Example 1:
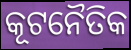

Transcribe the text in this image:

କୂଟନୈତିକ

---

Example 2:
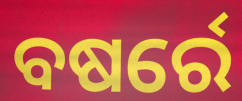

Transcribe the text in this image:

ବଷର୍ରେ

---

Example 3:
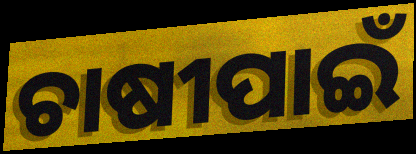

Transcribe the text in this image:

ଚାଷୀପାଇଁ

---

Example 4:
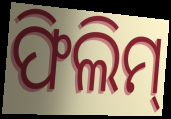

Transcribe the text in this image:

ଫିଲିମ୍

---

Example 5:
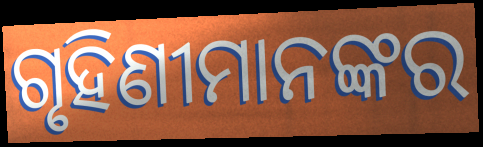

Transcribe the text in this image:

ଗୃହିଣୀମାନଙ୍କର